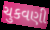
ચુકવણી